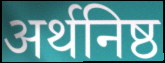
अर्थनिष्ठ